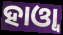
ହାଓ୍ୱା